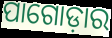
ପାଗୋଡ଼ାର